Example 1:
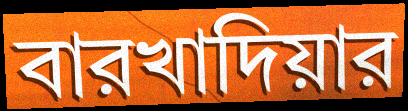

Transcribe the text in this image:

বারখাদিয়ার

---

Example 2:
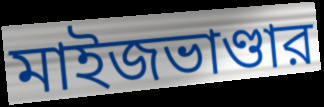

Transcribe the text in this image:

মাইজভাণ্ডার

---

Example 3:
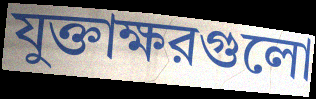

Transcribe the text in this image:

যুক্তাক্ষরগুলো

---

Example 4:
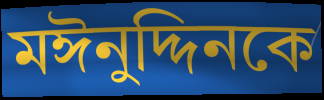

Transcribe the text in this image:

মঈনুদ্দিনকে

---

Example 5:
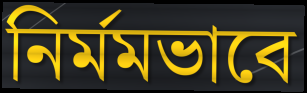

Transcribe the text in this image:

নির্মমভাবে